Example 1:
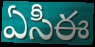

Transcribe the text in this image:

ఏసీఈ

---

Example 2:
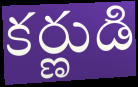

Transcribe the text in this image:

కర్ణుడి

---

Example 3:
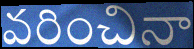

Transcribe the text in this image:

వరించినా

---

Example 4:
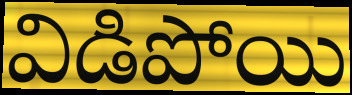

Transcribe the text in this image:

విడిపోయి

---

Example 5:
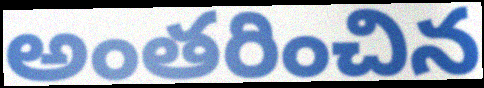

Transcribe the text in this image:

అంతరించిన